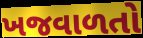
ખજવાળતો